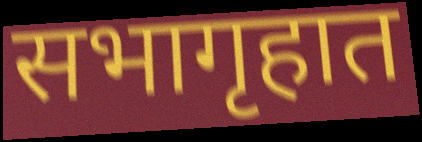
सभागृहात